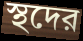
স্থদের